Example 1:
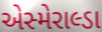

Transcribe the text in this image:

એસ્મેરાલ્ડા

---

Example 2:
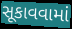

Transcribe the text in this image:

સૂકાવવામાં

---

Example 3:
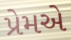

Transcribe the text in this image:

પ્રેમએ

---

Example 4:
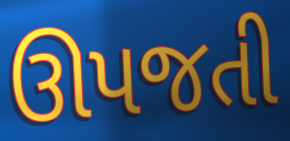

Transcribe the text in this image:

ઊપજતી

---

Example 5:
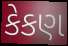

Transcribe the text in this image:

કેકણ